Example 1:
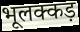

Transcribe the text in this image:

भूलक्कड़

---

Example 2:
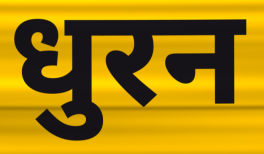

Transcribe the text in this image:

धुरन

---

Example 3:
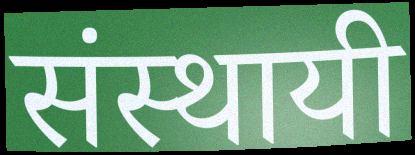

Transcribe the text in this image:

संस्थायी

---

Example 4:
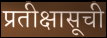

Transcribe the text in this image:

प्रतीक्षासूची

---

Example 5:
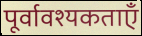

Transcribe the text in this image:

पूर्वावश्यकताएँ